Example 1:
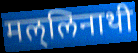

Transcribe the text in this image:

मल्लिनाथी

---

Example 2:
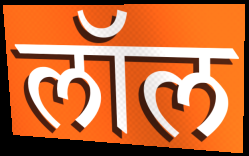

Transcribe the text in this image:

लॉल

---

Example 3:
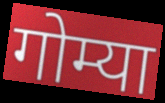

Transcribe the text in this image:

गोम्या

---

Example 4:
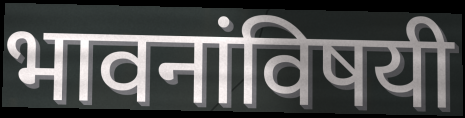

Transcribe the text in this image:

भावनांविषयी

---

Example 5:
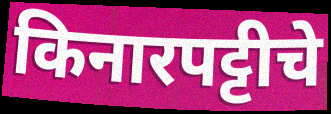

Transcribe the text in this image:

किनारपट्टीचे